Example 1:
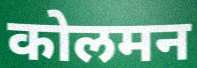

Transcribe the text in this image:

कोलमन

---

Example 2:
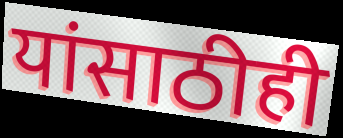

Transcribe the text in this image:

यांसाठीही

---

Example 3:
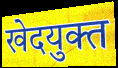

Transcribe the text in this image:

खेदयुक्त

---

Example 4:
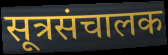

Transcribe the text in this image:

सूत्रसंचालक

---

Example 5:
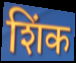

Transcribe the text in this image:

शिंक